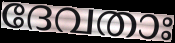
ദേവതാഃ